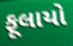
ફૂલાયો